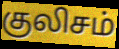
குலிசம்